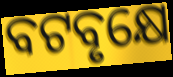
ବଟବୃକ୍ଷେ